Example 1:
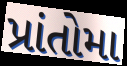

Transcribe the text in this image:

પ્રાંતોમા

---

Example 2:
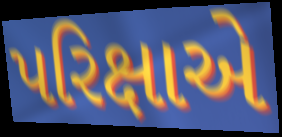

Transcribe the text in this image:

પરિક્ષાએ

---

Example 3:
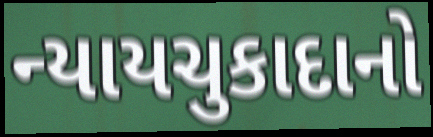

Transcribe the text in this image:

ન્યાયચુકાદાનો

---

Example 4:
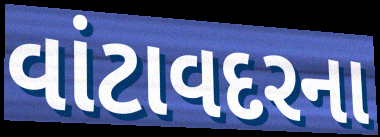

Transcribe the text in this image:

વાંટાવદરના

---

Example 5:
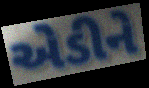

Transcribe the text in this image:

એડીને